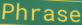
Phrase